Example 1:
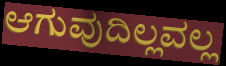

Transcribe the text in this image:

ಆಗುವುದಿಲ್ಲವಲ್ಲ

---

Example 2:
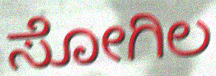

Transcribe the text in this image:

ಸೋಗಿಲ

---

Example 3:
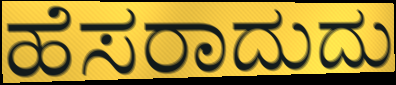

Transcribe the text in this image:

ಹೆಸರಾದುದು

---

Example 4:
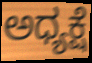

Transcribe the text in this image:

ಅಧ್ಯಕ್ಷೆ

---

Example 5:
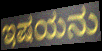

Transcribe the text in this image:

ಇಷಯನು